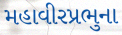
મહાવીરપ્રભુના